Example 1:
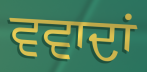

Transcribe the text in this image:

ਵਵਾਦਾਂ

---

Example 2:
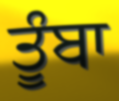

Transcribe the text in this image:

ਤੂੰਬਾ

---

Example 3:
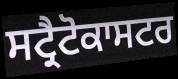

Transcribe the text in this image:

ਸਟ੍ਰੈਟੋਕਾਸਟਰ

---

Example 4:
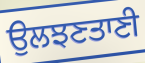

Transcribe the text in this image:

ਉਲਝਣਤਾਣੀ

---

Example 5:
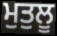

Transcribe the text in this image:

ਮੁਤੁਲੂ